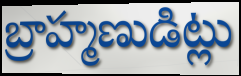
బ్రాహ్మణుడిట్లు